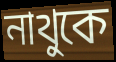
নাথুকে